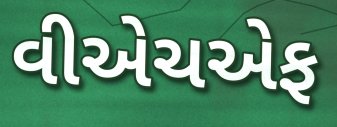
વીએચએફ